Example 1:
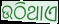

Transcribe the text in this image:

ଉଠିଥାଏ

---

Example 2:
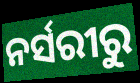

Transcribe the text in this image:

ନର୍ସରୀରୁ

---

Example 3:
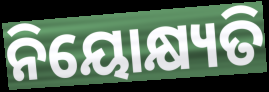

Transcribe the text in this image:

ନିୟୋକ୍ଷ୍ୟତି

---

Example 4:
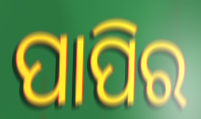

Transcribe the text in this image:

ପାପିର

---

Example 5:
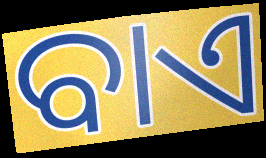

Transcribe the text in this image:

ବାଏ